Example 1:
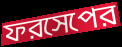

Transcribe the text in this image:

ফরসেপের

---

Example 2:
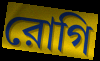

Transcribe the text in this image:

রোগি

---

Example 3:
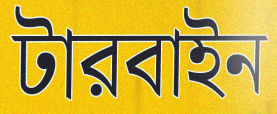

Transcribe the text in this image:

টারবাইন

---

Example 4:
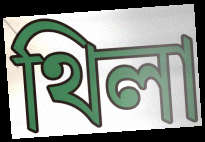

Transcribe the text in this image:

থিলা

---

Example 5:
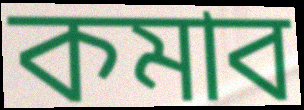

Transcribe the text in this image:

কমাব